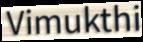
Vimukthi